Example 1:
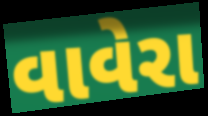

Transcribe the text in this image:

વાવેરા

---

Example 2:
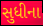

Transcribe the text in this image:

સુધીના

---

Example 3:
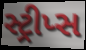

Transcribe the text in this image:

સ્ટ્રીપ્સ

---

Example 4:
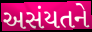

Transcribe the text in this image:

અસંયતને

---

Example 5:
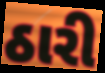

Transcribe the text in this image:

ઠારી